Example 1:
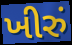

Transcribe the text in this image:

ખીરું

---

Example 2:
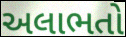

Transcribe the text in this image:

અલાભતો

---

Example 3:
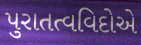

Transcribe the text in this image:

પુરાતત્વવિદોએ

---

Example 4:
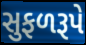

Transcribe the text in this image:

સુફળરૂપે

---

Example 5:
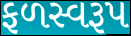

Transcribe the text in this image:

ફળસ્વરૂપ